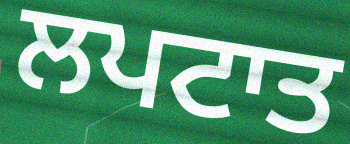
ਲਪਟਾਤ